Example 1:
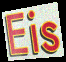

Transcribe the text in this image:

Eis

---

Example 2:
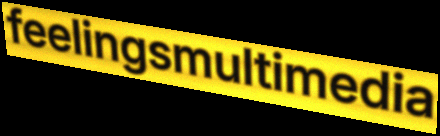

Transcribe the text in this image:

feelingsmultimedia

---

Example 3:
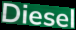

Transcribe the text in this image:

Diesel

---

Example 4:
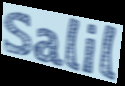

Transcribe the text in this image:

Salil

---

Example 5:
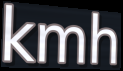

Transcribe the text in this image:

kmh